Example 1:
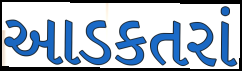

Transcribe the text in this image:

આડકતરાં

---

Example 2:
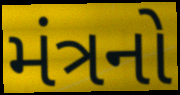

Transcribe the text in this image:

મંત્રનો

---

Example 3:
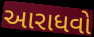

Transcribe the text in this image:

આરાધવો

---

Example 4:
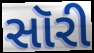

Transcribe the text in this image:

સૉરી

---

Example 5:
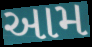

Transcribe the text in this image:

આમ